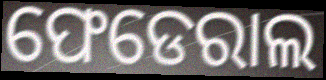
ଫେଡେରାଲ